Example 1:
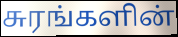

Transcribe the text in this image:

சுரங்களின்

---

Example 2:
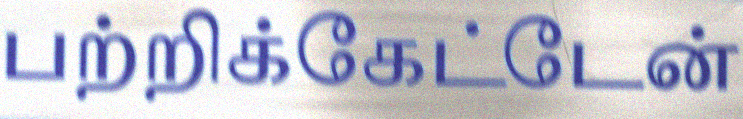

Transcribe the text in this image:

பற்றிக்கேட்டேன்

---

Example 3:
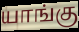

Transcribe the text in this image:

யாங்கு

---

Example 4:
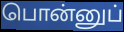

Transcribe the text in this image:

பொன்னுப்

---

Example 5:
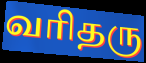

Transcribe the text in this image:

வரிதரு